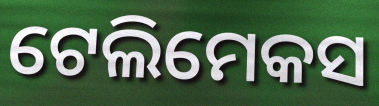
ଟେଲିମେକସ